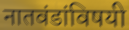
नातवंडांविषयी